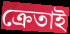
ক্ৰেতাই